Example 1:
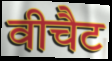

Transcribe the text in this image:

वीचैट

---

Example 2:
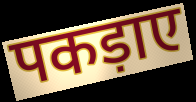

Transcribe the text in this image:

पकड़ाए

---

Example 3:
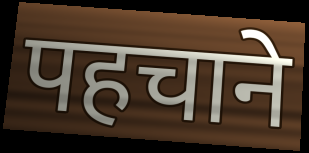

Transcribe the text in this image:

पहचाने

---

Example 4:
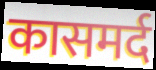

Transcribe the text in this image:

कासमर्द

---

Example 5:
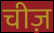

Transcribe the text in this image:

चीज़